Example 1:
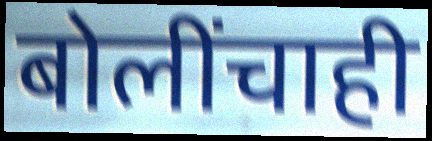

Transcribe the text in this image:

बोलींचाही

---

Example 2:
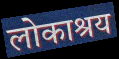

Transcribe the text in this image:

लोकाश्रय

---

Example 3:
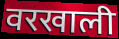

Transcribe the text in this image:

वरखाली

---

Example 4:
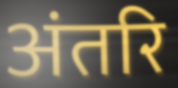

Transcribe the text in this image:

अंतरि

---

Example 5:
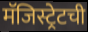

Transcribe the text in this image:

मॅजिस्ट्रेटची